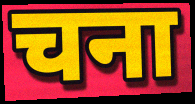
चना